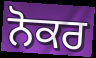
ਨੋਕਰ